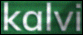
kalvi